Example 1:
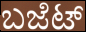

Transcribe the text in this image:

ಬಜೆಟ್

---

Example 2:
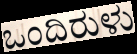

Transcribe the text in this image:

ಒಂದಿರುಳು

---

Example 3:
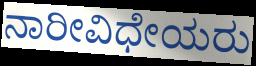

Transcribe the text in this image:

ನಾರೀವಿಧೇಯರು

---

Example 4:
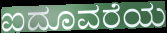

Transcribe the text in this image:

ಐದೂವರೆಯ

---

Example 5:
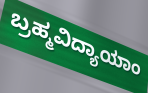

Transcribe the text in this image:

ಬ್ರಹ್ಮವಿದ್ಯಾಯಾಂ